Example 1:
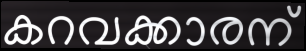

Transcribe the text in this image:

കറവക്കാരന്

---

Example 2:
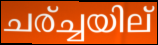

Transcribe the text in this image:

ചര്ച്ചയില്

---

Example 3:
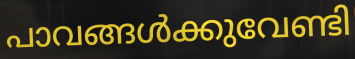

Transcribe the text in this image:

പാവങ്ങൾക്കുവേണ്ടി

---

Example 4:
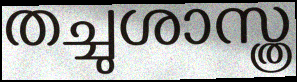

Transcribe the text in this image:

തച്ചുശാസ്ത്ര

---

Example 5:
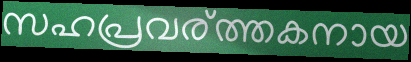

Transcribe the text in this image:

സഹപ്രവര്ത്തകനായ